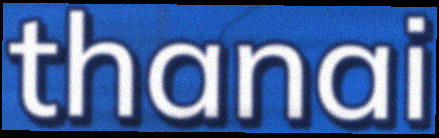
thanai